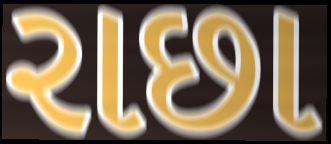
રાછા